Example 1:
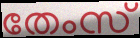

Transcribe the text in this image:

തേംസ്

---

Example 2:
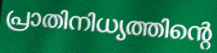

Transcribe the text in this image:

പ്രാതിനിധ്യത്തിന്റെ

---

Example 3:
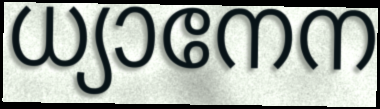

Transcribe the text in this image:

ധ്യാനേന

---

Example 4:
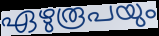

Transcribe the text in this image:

ഏഴുരൂപയും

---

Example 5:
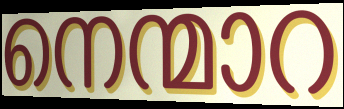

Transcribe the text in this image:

നെന്മാറ